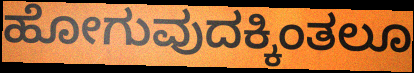
ಹೋಗುವುದಕ್ಕಿಂತಲೂ